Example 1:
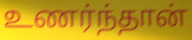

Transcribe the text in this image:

உணர்ந்தான்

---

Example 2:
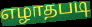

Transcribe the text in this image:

எழாதபடி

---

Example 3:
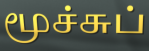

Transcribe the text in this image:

மூச்சுப்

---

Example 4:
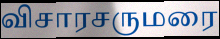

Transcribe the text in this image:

விசாரசருமரை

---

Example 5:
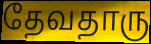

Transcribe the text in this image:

தேவதாரு